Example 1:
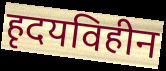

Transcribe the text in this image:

हृदयविहीन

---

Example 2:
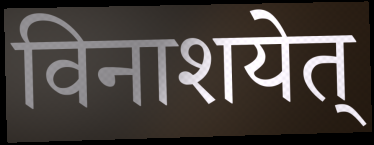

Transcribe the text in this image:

विनाशयेत्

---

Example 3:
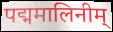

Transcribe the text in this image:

पद्ममालिनीम्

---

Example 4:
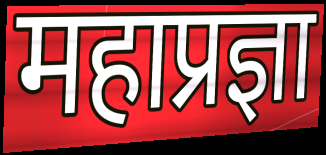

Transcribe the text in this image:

महाप्रज्ञा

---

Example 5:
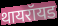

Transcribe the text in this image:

थायरॉयड